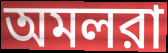
অমলরা